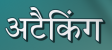
अटैकिंग